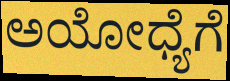
ಅಯೋಧ್ಯೆಗೆ